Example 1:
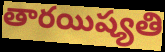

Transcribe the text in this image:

తారయిష్యతి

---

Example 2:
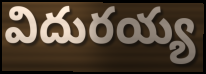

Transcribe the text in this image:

విదురయ్య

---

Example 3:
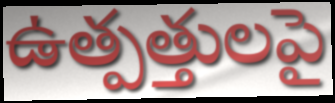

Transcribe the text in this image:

ఉత్పత్తులపై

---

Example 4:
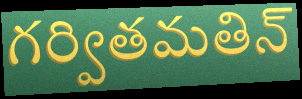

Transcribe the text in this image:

గర్వితమతిన్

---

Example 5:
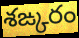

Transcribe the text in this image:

శఙ్కరం